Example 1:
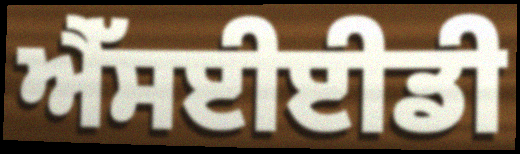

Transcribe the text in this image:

ਐੱਸਈਈਡੀ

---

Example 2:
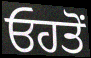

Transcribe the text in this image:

ਓਹਤੋਂ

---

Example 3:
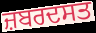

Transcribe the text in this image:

ਜ਼ਬਰਦਸਤ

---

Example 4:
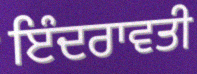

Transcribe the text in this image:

ਇੰਦਰਾਵਤੀ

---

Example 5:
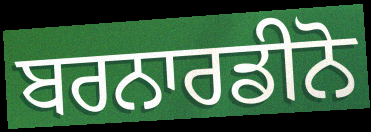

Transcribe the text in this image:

ਬਰਨਾਰਡੀਨੋ